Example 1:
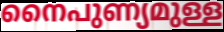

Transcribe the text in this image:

നൈപുണ്യമുള്ള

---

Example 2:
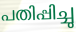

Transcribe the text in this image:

പതിപ്പിച്ചു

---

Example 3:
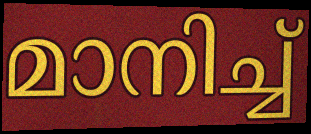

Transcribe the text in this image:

മാനിച്ച്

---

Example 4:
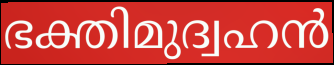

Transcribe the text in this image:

ഭക്തിമുദ്വഹൻ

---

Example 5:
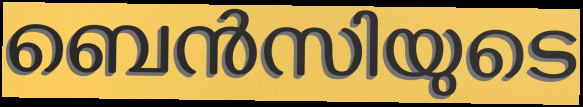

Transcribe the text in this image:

ബെൻസിയുടെ